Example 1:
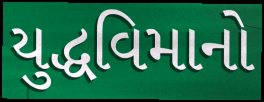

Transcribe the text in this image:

યુદ્ધવિમાનો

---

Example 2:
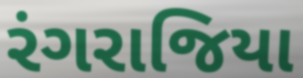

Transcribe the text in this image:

રંગરાજિયા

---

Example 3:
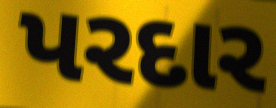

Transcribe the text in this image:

પરદાર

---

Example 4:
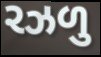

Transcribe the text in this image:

રઝળુ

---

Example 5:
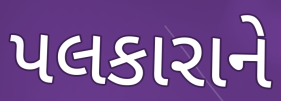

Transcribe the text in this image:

પલકારાને